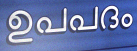
ഉപപദം